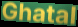
Ghatal